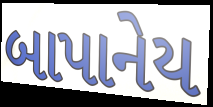
બાપાનેય